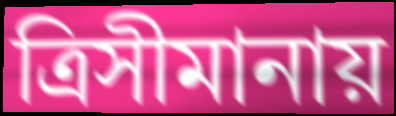
ত্রিসীমানায়